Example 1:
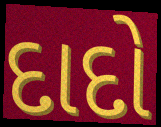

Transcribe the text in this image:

દાદો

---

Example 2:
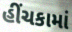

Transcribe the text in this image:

હીંચકામાં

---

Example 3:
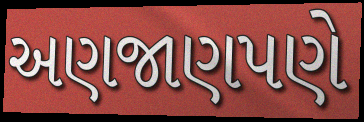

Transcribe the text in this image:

અણજાણપણે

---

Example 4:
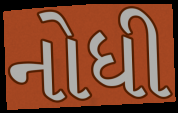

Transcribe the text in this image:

નોધી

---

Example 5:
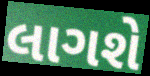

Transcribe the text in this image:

લાગશે